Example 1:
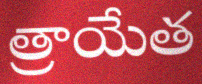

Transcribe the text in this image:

త్రాయేత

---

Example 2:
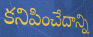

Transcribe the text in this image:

కనిపించేదాన్ని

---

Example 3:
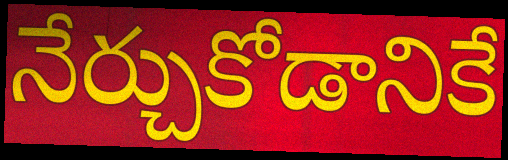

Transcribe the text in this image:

నేర్చుకోడానికే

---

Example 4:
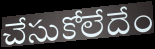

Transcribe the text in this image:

చేసుకోలేదేం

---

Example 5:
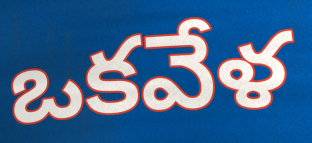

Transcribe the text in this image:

ఒకవేళ